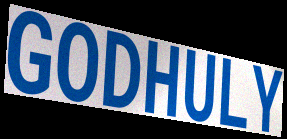
GODHULY